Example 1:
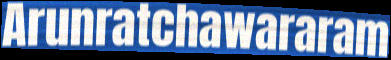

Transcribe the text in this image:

Arunratchawararam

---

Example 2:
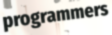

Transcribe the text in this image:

programmers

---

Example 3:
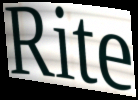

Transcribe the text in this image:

Rite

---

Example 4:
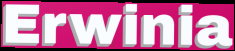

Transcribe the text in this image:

Erwinia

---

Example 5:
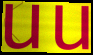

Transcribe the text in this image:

uu